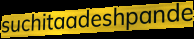
suchitaadeshpande